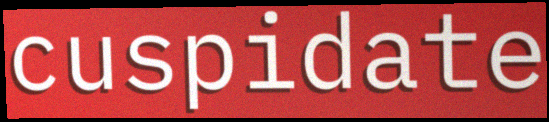
cuspidate